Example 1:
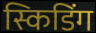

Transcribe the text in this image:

स्किडिंग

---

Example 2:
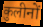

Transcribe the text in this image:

कुलीनों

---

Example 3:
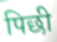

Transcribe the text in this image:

पिछी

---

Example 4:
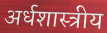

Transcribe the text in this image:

अर्धशास्त्रीय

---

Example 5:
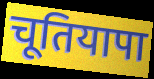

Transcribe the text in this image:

चूतियापा